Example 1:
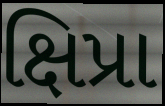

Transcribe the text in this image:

ક્ષિપ્રા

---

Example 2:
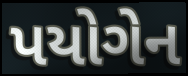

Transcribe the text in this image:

પયોગેન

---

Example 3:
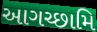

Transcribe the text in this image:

આગચ્છામિ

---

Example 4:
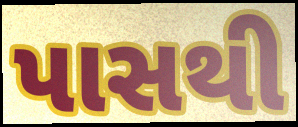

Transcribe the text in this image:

પાસથી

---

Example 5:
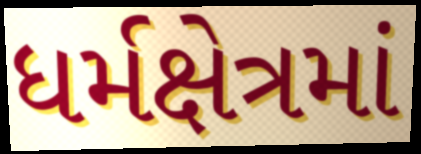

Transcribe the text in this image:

ધર્મક્ષેત્રમાં